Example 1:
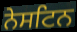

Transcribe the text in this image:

ਨੇਸਟਿਨ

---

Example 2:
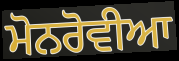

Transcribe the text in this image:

ਮੋਨਰੋਵੀਆ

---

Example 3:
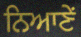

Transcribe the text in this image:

ਨਿਆਣੇਂ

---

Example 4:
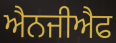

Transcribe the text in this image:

ਐਨਜੀਐਫ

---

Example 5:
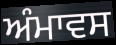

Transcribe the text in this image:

ਅੰਮਾਵਸ